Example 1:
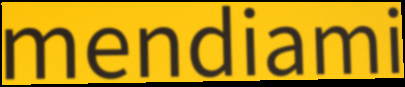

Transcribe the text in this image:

mendiami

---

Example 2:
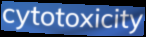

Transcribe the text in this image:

cytotoxicity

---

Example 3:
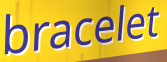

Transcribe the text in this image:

bracelet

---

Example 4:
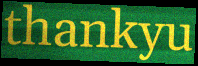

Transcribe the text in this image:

thankyu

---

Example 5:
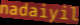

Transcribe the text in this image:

nadaiyil